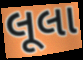
લૂલા